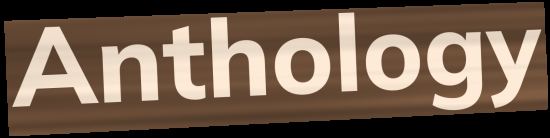
Anthology